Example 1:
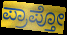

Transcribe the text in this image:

ಪ್ರಾಪ್ತೋ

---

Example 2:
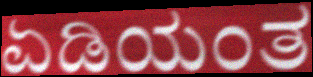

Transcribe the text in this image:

ಏಡಿಯಂತ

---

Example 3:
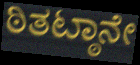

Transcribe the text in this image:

ಠಿತಟ್ಠಾನೇ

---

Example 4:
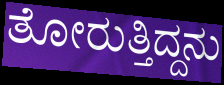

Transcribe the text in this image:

ತೋರುತ್ತಿದ್ದನು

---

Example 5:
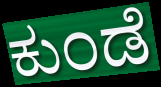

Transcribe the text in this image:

ಕುಂಡೆ